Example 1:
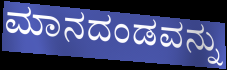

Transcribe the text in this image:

ಮಾನದಂಡವನ್ನು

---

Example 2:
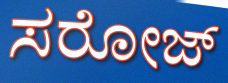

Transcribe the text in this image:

ಸರೋಜ್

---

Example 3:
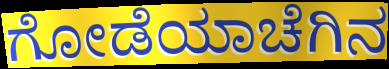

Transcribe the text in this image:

ಗೋಡೆಯಾಚೆಗಿನ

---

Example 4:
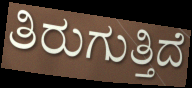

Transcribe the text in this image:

ತಿರುಗುತ್ತಿದೆ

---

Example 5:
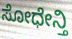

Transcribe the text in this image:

ಸೋಧೇನ್ತಿ